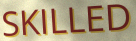
SKILLED